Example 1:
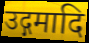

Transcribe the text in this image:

उद्गमादि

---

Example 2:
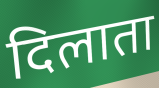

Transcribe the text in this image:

दिलाता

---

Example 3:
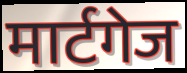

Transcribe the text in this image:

मार्टगेज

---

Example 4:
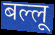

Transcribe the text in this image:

बल्लू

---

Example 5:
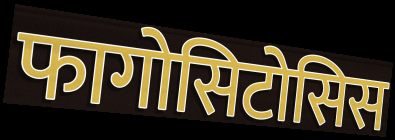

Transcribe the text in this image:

फागोसिटोसिस